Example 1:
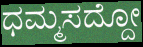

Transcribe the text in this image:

ಧಮ್ಮಸದ್ದೋ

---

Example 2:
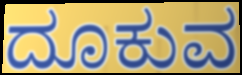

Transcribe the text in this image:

ದೂಕುವ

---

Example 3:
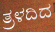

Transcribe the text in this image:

ತ್ರಳದಿದ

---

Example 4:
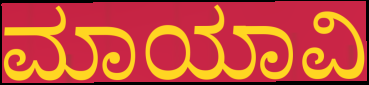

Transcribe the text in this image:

ಮಾಯಾವಿ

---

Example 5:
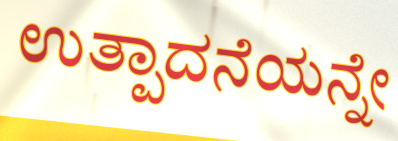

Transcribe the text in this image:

ಉತ್ಪಾದನೆಯನ್ನೇ